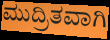
ಮುದ್ರಿತವಾಗಿ